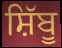
ਸ਼ਿੱਬੂ